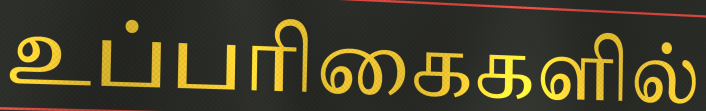
உப்பரிகைகளில்